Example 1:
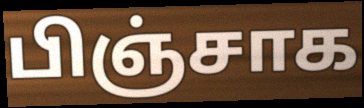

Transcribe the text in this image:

பிஞ்சாக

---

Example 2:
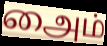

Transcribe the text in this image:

அைம்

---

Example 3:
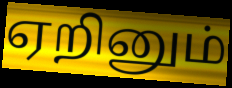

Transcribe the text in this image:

ஏறினும்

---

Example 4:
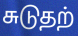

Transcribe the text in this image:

சுடுதற்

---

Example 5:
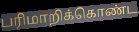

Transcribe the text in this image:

பரிமாறிக்கொண்ட